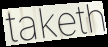
taketh